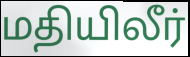
மதியிலீர்